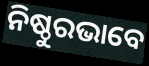
ନିଷ୍ଠୁରଭାବେ